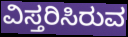
ವಿಸ್ತರಿಸಿರುವ